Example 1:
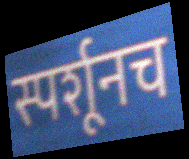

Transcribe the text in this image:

स्पर्शूनच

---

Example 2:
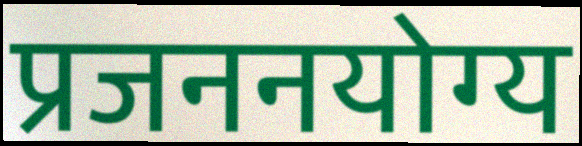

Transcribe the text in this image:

प्रजननयोग्य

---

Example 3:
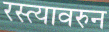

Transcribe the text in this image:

रस्त्यावरुन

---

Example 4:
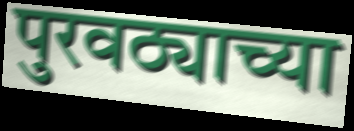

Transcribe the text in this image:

पुरवठ्याच्या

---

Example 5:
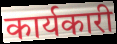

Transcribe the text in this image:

कार्यकारी